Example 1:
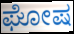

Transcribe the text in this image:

ಘೋಷ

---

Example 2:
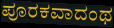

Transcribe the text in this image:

ಪೂರಕವಾದಂಥ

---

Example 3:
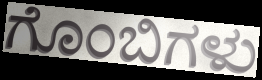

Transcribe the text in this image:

ಗೊಂಬಿಗಳು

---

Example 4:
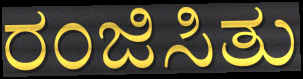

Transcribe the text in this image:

ರಂಜಿಸಿತು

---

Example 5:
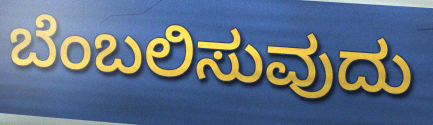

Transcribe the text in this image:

ಬೆಂಬಲಿಸುವುದು